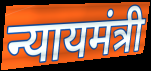
न्यायमंत्री